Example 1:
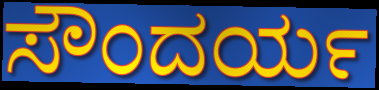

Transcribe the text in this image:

ಸೌಂದರ್ಯ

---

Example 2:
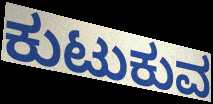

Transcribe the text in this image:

ಕುಟುಕುವ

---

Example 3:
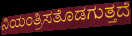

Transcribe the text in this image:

ನಿಯಂತ್ರಿಸತೊಡಗುತ್ತದೆ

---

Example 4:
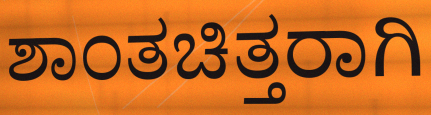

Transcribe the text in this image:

ಶಾಂತಚಿತ್ತರಾಗಿ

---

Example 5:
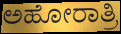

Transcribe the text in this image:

ಅಹೋರಾತ್ರಿ